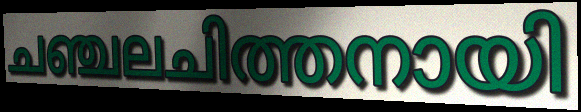
ചഞ്ചലചിത്തനായി